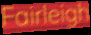
Fairleigh